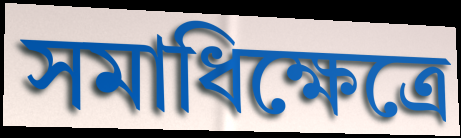
সমাধিক্ষেত্রে